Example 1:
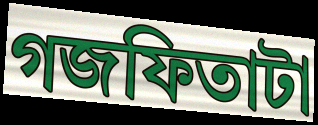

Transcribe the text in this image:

গজফিতাটা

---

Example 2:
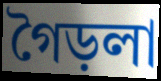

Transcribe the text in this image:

গৈড়লা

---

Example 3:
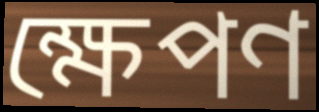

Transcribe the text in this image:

ক্ষেপণ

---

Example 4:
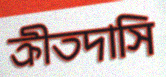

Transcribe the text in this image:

ক্রীতদাসি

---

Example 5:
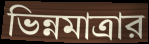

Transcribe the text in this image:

ভিন্নমাত্রার